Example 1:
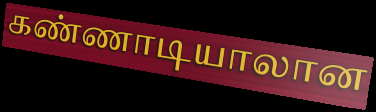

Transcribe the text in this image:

கண்ணாடியாலான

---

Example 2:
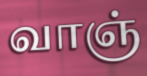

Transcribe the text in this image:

வாஞ்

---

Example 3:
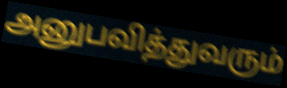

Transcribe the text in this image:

அனுபவித்துவரும்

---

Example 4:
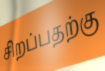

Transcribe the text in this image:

சிறப்பதற்கு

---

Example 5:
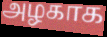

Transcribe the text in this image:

அழகாக